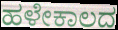
ಹಳೇಕಾಲದ